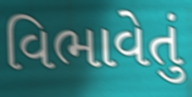
વિભાવેતું